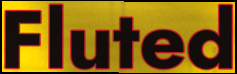
Fluted